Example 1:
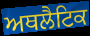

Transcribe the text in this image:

ਅਥਲੈਟਿਕ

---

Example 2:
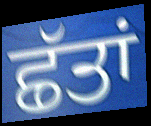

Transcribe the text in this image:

ਛੱਤਾਂ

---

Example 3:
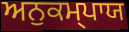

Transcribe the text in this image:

ਅਨੁਕਮ੍ਪਾਯ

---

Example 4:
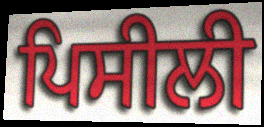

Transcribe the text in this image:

ਪਿਸੀਲੀ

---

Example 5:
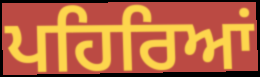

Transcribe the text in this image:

ਪਹਿਰਿਆਂ